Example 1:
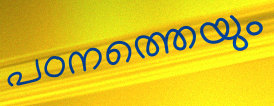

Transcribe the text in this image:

പഠനത്തെയും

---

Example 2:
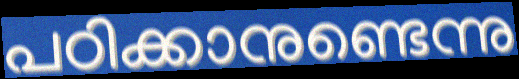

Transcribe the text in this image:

പഠിക്കാനുണ്ടെന്നു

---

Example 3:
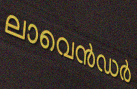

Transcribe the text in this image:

ലാവെൻഡർ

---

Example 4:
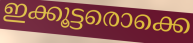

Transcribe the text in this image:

ഇക്കൂട്ടരൊക്കെ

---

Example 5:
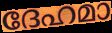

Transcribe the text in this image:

ദേഹമാ